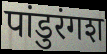
पांडुरंगश